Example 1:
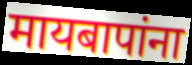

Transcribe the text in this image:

मायबापांना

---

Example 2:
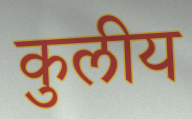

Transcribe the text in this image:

कुलीय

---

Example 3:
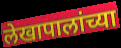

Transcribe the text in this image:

लेखापालांच्या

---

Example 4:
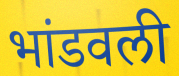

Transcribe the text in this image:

भांडवली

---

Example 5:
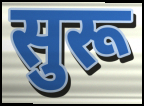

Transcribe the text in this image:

सुरू